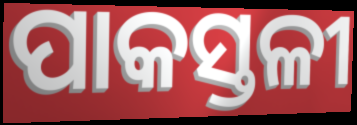
ପାକସ୍ତଳୀ